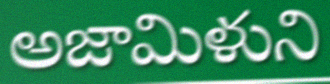
అజామిళుని